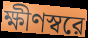
ক্ষীণস্বরে